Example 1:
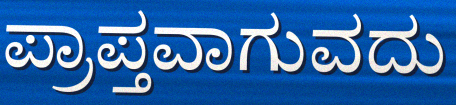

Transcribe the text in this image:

ಪ್ರಾಪ್ತವಾಗುವದು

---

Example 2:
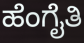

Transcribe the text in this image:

ಹೆಂಗೈತಿ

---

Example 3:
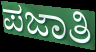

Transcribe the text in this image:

ಪಜಾತಿ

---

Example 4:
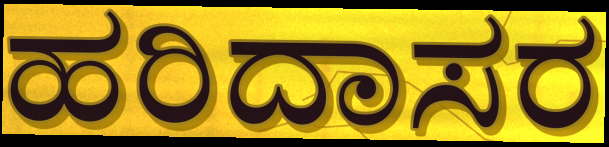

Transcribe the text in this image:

ಹರಿದಾಸರ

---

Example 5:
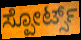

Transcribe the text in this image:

ಸ್ಪೋರ್ಟ್ಸ್